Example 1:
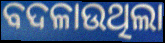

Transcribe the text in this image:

ବଦଳାଉଥିଲା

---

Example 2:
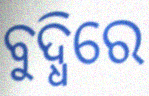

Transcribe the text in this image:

ବୁଦ୍ଧିରେ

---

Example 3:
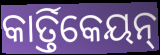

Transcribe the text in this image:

କାର୍ତ୍ତିକେୟନ୍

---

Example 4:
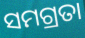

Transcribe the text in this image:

ସମଗ୍ରତା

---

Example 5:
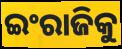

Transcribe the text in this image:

ଇଂରାଜିକୁ